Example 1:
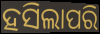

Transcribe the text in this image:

ହସିଲାପରି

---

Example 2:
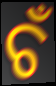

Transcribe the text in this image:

ଚଁ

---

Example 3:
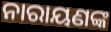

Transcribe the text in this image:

ନାରାୟଣଙ୍କ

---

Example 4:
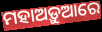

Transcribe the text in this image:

ମହାଅଡ଼ୁଆରେ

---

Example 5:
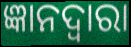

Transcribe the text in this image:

ଜ୍ଞାନଦ୍ଵାରା